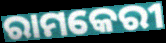
ରାମକେରୀ